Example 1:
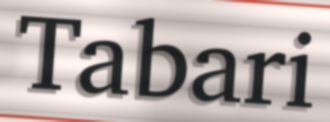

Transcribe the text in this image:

Tabari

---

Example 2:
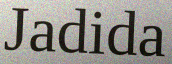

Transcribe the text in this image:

Jadida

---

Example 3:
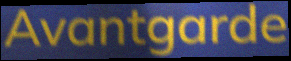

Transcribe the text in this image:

Avantgarde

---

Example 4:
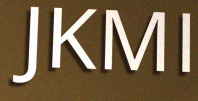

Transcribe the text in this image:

JKMI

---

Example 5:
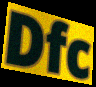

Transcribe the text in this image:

Dfc